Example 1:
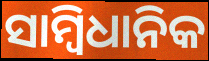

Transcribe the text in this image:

ସାମ୍ବିଧାନିକ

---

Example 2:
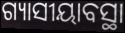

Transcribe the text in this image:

ଗ୍ୟାସୀୟାବସ୍ଥା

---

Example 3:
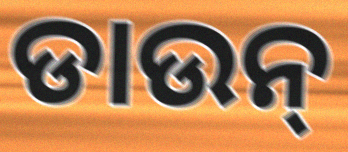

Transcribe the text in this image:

ଡାଉନ୍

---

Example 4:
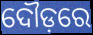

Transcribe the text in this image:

ଦୌଡ଼ରେ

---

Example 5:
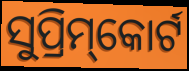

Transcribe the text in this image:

ସୁପ୍ରିମ୍‌କୋର୍ଟ